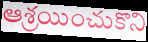
ఆశ్రయించుకొని